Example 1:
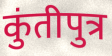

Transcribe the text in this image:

कुंतीपुत्र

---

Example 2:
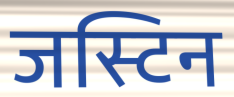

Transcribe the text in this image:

जस्टिन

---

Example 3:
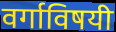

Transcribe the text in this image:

वर्गाविषयी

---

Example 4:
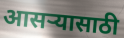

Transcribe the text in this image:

आसऱ्यासाठी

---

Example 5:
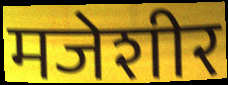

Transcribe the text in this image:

मजेशीर